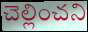
చెల్లించని